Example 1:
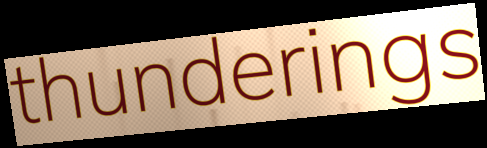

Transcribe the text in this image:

thunderings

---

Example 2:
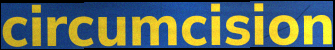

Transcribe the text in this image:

circumcision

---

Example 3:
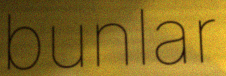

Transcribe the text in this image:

bunlar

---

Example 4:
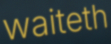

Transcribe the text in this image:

waiteth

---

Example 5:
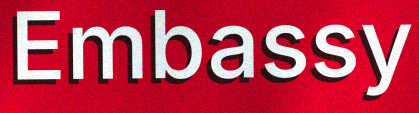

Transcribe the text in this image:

Embassy